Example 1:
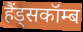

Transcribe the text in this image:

हैंड्सकॉम्ब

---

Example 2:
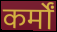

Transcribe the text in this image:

कर्मों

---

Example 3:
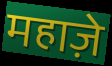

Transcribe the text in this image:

महाज़े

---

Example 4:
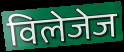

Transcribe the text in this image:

विलेजेज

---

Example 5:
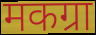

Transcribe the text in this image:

मकग्रा